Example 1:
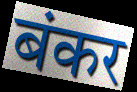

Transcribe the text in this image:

बंकर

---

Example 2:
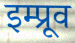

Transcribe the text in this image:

इम्प्रूव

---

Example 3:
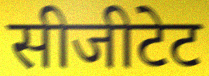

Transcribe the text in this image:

सीजीटेट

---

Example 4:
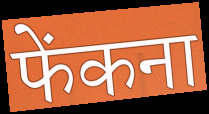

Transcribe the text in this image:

फेंकना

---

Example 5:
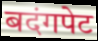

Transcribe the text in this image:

बदंगपेट